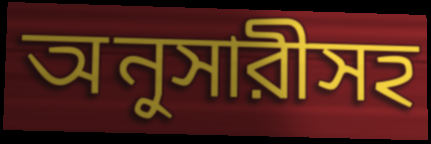
অনুসারীসহ